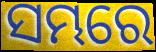
ସମ୍ଭରେ